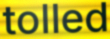
tolled